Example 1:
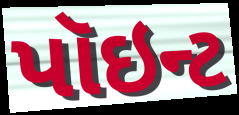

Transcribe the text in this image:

પૉઇન્ટ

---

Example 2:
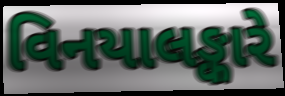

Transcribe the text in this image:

વિનયાલઙ્કારે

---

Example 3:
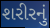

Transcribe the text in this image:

શરીરનું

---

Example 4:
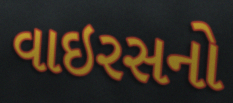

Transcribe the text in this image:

વાઇરસનો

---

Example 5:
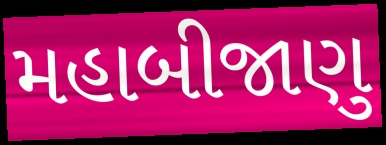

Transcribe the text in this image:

મહાબીજાણુ